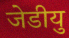
जेडीयु